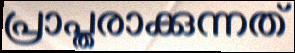
പ്രാപ്തരാക്കുന്നത്